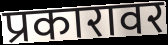
प्रकारावर